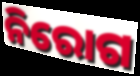
ନିରୋଗ